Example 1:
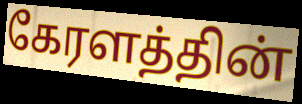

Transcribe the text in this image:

கேரளத்தின்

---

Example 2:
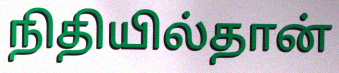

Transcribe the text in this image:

நிதியில்தான்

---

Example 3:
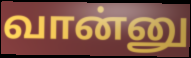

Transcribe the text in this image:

வான்னு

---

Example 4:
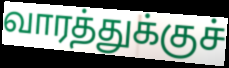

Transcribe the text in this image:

வாரத்துக்குச்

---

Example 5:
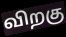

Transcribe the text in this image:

விறகு